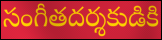
సంగీతదర్శకుడికి